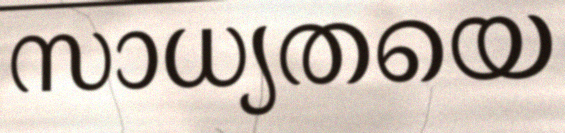
സാധ്യതയെ